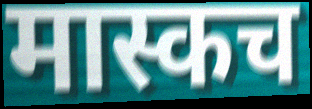
मास्कच